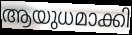
ആയുധമാക്കി